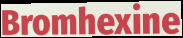
Bromhexine